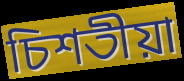
চিশতীয়া